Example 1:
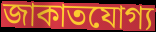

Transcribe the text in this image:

জাকাতযোগ্য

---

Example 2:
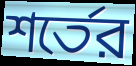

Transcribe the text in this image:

শর্তের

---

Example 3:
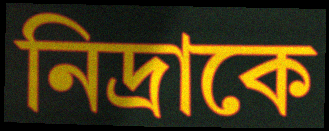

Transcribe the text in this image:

নিদ্রাকে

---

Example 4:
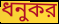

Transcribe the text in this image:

ধনুকর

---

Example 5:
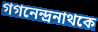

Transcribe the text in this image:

গগনেন্দ্রনাথকে